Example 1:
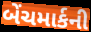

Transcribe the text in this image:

બેંચમાર્કની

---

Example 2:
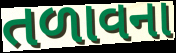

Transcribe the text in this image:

તળાવના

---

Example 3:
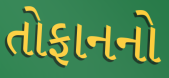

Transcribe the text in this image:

તોફાનનો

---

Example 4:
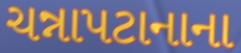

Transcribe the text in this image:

ચન્નાપટાનાના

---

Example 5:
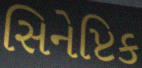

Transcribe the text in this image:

સિનેપ્ટિક